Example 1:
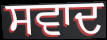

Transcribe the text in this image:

ਸਵਾਦ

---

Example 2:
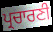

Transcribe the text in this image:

ਪ੍ਰਚਾਰਣੀ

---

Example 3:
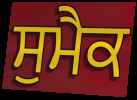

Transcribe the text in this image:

ਸੁਮੈਕ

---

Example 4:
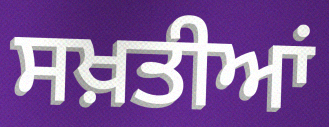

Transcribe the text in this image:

ਸਖ਼ਤੀਆਂ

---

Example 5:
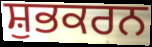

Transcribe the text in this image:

ਸ਼ੁਭਕਰਨ